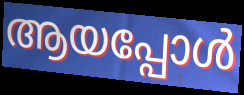
ആയപ്പോൾ